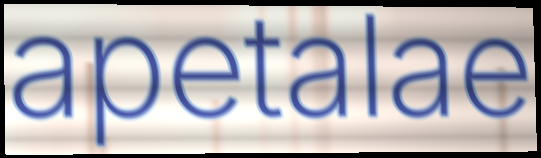
apetalae